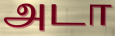
அடா